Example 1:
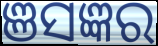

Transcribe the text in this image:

ଞସଜ୍ଞର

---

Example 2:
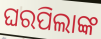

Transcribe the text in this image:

ଘରପିଲାଙ୍କ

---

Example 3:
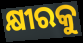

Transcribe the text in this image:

କ୍ଷୀରକୁ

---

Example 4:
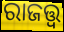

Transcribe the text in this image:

ରାଜତ୍ତ୍ୱ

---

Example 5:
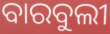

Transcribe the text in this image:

ବାରବୁଲୀ